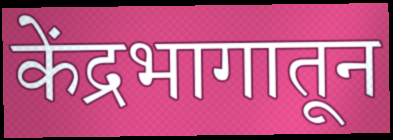
केंद्रभागातून